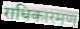
राधिकारमण